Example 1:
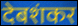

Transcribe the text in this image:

देबशंकर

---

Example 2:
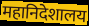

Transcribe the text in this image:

महानिदेशालय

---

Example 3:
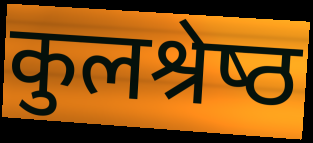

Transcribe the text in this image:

कुलश्रेष्‍ठ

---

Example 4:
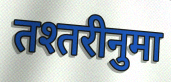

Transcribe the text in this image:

तश्तरीनुमा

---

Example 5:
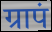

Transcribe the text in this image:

ग्रापं